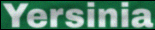
Yersinia